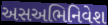
અસઅભિનિવેશ